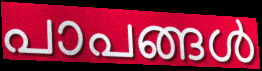
പാപങ്ങൾ